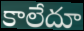
కాలేదూ